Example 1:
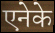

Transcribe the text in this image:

एनेके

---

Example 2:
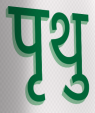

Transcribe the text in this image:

पृथु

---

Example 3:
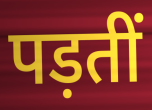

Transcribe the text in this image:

पड़तीं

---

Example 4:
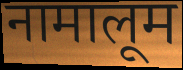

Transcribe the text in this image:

नामालूम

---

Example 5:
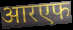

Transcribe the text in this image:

आरएफ